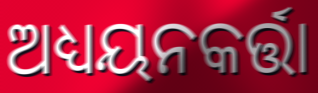
ଅଧ୍ୟୟନକର୍ତ୍ତା